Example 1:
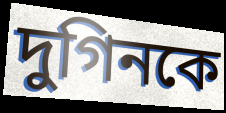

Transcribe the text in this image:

দুগিনকে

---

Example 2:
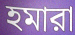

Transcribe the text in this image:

হমারা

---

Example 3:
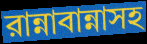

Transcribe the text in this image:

রান্নাবান্নাসহ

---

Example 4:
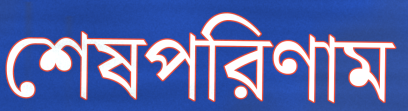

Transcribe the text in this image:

শেষপরিণাম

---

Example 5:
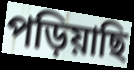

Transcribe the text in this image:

পড়িয়াছি